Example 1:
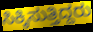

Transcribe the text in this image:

ಸಿಕ್ಕಿಸುತ್ತಿದ್ದರು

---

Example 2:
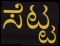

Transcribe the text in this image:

ಸೆಟ್ಟ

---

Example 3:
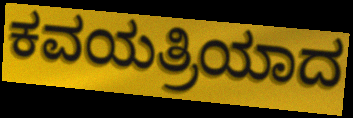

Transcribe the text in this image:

ಕವಯತ್ರಿಯಾದ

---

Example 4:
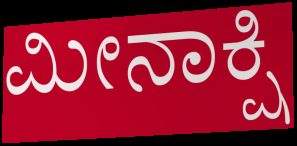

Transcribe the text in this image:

ಮೀನಾಕ್ಷಿ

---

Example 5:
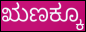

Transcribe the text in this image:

ಋಣಕ್ಕೂ